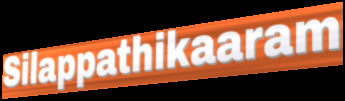
Silappathikaaram